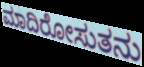
ಮಾದಿರೋಸುತನು